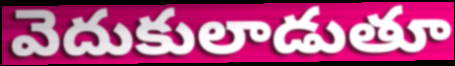
వెదుకులాడుతూ